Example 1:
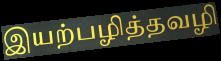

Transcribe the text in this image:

இயற்பழித்தவழி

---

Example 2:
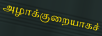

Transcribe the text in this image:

அழாக்குறையாகச்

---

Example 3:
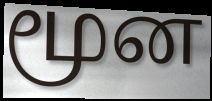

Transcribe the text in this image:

மூன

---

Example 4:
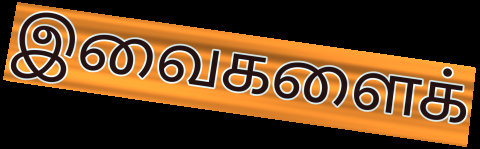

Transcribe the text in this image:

இவைகளைக்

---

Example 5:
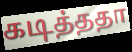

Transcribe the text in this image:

கடித்ததா